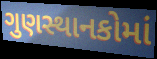
ગુણસ્થાનકોમાં